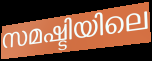
സമഷ്ടിയിലെ